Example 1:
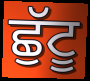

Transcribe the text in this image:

ਛੁੱਟੂ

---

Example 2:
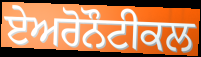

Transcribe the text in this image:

ਏਅਰੋਨੌਟੀਕਲ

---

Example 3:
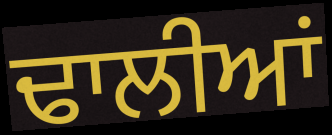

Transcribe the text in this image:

ਢਾਲੀਆਂ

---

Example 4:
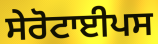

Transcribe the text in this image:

ਸੇਰੋਟਾਈਪਸ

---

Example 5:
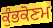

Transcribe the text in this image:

ਕੁੰਭਕੋਣਮ